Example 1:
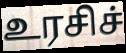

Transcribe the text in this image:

உரசிச்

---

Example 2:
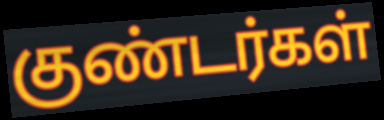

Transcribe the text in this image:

குண்டர்கள்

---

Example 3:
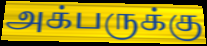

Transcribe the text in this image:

அக்பருக்கு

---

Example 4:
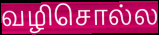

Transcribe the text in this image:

வழிசொல்ல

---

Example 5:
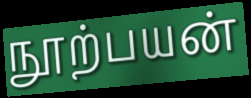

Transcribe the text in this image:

நூற்பயன்